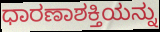
ಧಾರಣಾಶಕ್ತಿಯನ್ನು